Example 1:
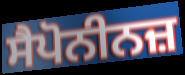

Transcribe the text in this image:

ਸੈਪੋਨੀਨਜ਼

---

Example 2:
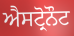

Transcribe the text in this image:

ਐਸਟ੍ਰੋਨੌਟ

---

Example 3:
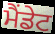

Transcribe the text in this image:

ਮੈਂਡੇਟ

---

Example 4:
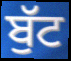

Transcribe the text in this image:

ਬੁੱਟ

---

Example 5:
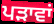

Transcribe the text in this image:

ਪੜਾਵਾਂ